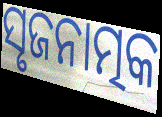
ସୃଜନାତ୍ମକ